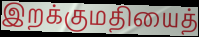
இறக்குமதியைத்